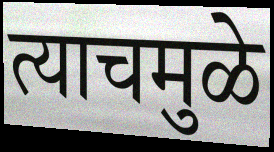
त्याचमुळे